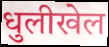
धुलीखेल